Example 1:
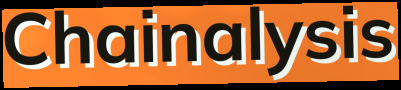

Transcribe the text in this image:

Chainalysis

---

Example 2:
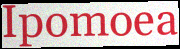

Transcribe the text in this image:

Ipomoea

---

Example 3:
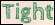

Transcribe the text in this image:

Tight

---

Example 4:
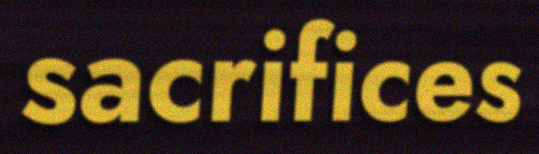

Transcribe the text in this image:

sacrifices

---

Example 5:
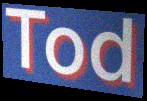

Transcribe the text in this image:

Tod